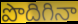
పొదిగినా